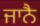
ਜਾਨੈ